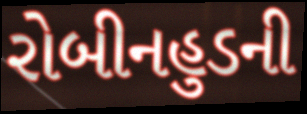
રોબીનહુડની